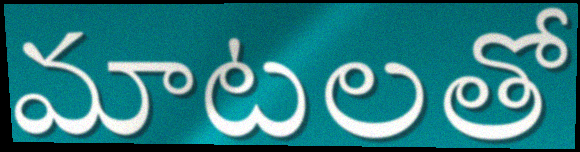
మాటలతో